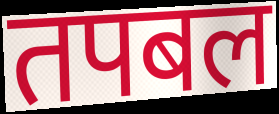
तपबल